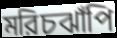
মরিচঝাঁপি